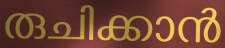
രുചിക്കാൻ